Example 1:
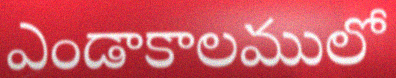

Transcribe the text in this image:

ఎండాకాలములో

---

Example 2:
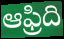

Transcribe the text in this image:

ఆఫ్రిది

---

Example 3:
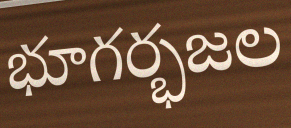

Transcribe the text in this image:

భూగర్భజల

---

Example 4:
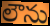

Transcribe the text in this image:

లౌను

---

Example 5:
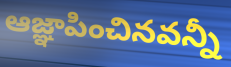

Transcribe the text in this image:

ఆజ్ఞాపించినవన్నీ